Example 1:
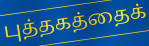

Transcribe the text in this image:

புத்தகத்தைக்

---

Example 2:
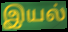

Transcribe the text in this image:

இயல்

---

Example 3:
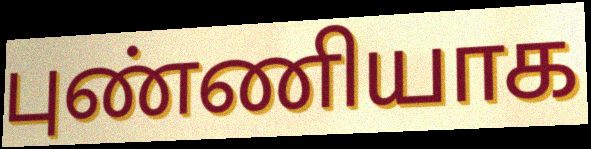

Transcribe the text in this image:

புண்ணியாக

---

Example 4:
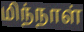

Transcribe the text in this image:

மிந்நாள்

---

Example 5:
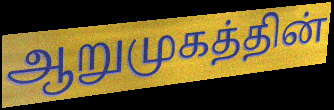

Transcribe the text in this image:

ஆறுமுகத்தின்